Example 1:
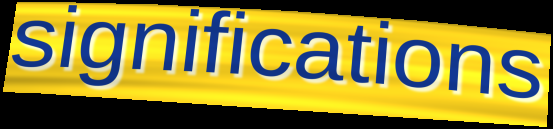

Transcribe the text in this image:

significations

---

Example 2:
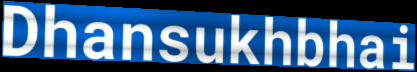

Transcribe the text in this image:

Dhansukhbhai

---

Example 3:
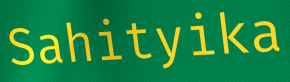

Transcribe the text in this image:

Sahityika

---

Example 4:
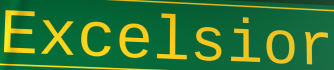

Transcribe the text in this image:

Excelsior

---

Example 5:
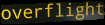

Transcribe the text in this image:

overflight